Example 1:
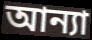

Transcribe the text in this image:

আন্যা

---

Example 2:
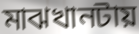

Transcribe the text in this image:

মাঝখানটায়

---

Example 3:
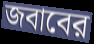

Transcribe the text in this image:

জবাবের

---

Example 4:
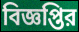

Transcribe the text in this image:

বিজ্ঞপ্তির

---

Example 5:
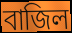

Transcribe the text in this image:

বাজিল